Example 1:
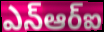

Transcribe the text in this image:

ఎన్ఆర్ఐ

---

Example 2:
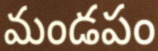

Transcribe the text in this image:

మండపం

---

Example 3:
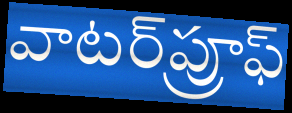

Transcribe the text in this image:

వాటర్‌ప్రూఫ్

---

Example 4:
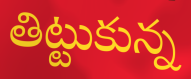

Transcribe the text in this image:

తిట్టుకున్న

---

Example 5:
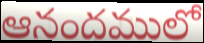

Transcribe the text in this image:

ఆనందములో